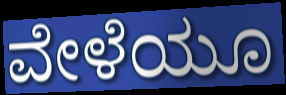
ವೇಳೆಯೂ